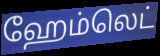
ஹேம்லெட்